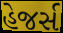
હેજર્સ